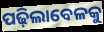
ପଢ଼ିଲାବେଳକୁ